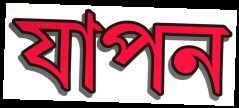
যাপন